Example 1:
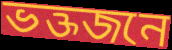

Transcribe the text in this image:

ভক্তজনে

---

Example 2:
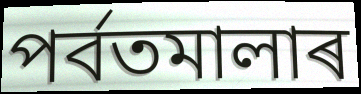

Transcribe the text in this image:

পৰ্বতমালাৰ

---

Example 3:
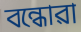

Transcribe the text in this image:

বন্ধোৱা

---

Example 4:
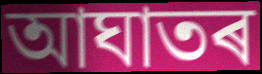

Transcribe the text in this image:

আঘাতৰ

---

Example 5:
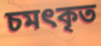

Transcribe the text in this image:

চমৎকৃত